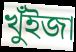
খুঁইজা